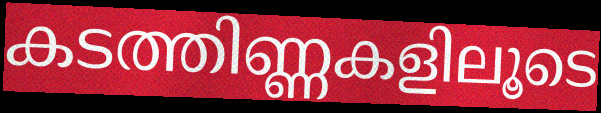
കടത്തിണ്ണകളിലൂടെ